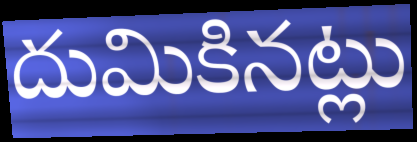
దుమికినట్లు